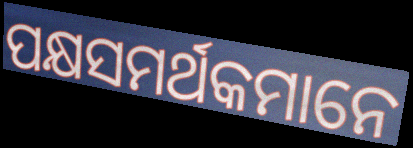
ପକ୍ଷସମର୍ଥକମାନେ